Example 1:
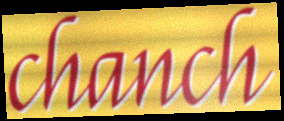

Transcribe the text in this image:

chanch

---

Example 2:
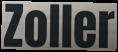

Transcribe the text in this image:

Zoller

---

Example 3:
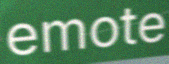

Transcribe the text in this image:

emote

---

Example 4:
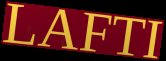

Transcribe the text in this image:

LAFTI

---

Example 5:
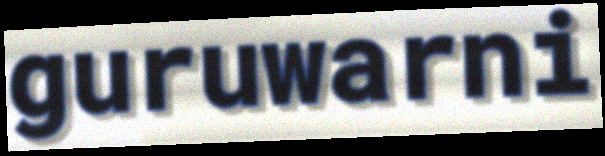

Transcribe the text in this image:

guruwarni